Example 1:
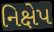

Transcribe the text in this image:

નિક્ષેપ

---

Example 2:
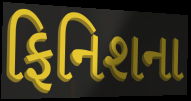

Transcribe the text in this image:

ફિનિશના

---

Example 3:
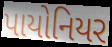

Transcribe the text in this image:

પાયોનિયર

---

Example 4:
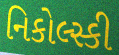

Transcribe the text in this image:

નિકોલ્સ્કી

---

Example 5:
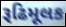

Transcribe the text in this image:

રૂઢિમૂલક